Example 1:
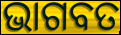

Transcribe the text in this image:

ଭାଗବତ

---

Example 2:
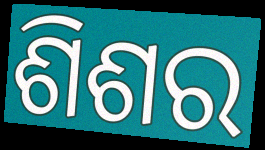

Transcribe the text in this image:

ଶିଶର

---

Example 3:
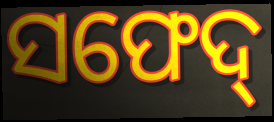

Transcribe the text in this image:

ସଫେଦ୍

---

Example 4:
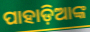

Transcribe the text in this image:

ପାହାଡ଼ିଆଙ୍କ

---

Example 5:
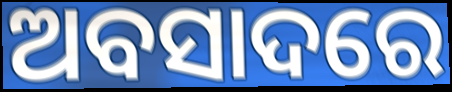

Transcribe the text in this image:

ଅବସାଦରେ